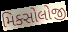
મિક્સોલોજી